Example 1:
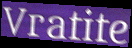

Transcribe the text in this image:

Vratite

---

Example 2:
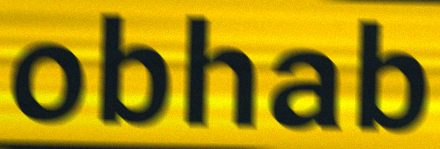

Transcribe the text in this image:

obhab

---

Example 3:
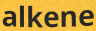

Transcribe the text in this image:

alkene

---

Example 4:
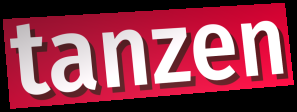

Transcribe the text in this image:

tanzen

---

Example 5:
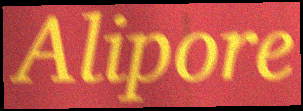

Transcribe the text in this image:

Alipore